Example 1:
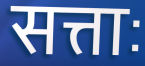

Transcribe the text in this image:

सत्ताः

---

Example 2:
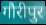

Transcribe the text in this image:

गौरीपुर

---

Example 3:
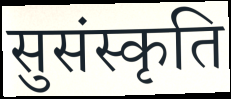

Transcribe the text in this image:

सुसंस्कृति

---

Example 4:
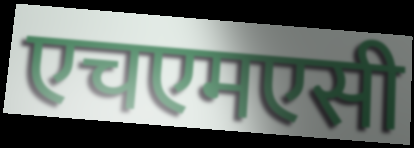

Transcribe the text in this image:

एचएमएसी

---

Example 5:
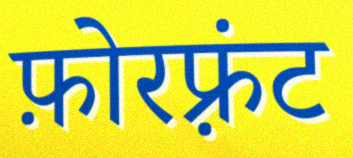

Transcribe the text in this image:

फ़ोरफ़्रंट